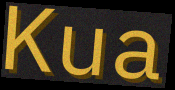
Kua